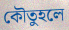
কৌতুহলে